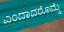
ಎಂದಾದರೊಮ್ಮೆ